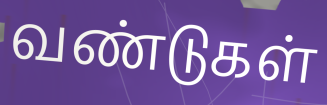
வண்டுகள்